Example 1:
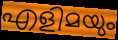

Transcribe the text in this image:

എളിമയും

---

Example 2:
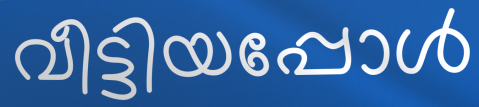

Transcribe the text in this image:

വീട്ടിയപ്പോൾ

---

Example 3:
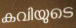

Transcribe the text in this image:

കവിയുടെ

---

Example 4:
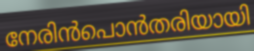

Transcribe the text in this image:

നേരിൻപൊൻതരിയായി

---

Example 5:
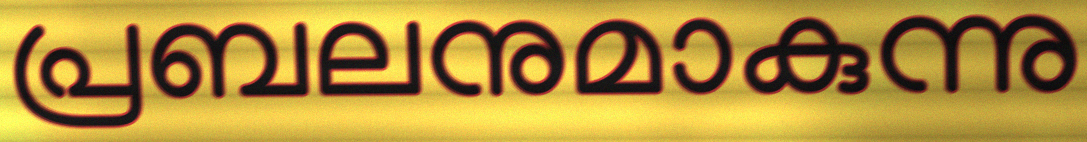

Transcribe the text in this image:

പ്രബലനുമാകുന്നു